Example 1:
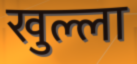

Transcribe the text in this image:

खुल्ला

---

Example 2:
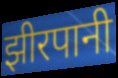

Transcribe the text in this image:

झीरपानी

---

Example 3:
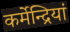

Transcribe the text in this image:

कर्मेन्द्रियां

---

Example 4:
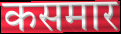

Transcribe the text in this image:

कसमार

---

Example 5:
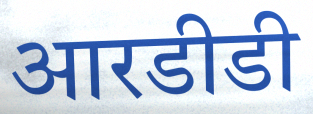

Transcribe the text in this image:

आरडीडी